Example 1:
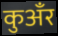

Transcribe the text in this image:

कुअँर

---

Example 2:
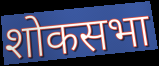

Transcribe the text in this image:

शोकसभा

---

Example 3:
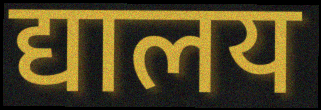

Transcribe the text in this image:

द्यालय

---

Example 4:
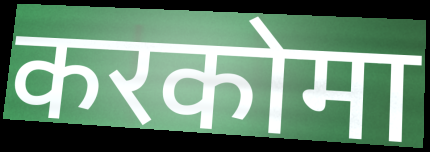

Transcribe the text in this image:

करकोमा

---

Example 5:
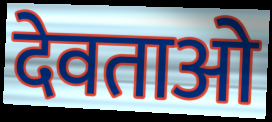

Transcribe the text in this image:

देवताओ